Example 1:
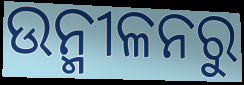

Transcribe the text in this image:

ଉନ୍ମୀଳନରୁ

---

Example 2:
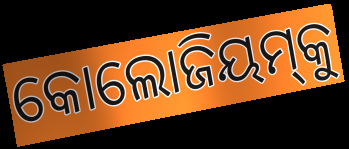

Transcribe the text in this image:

କୋଲୋଜିୟମ୍‍କୁ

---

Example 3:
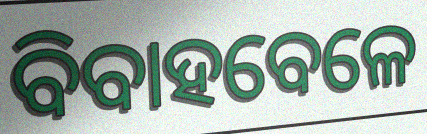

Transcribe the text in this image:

ବିବାହବେଳେ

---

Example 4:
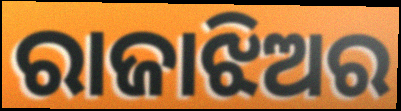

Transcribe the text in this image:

ରାଜାଝିଅର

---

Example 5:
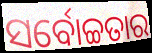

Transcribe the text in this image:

ସର୍ବୋଚ୍ଚତାର